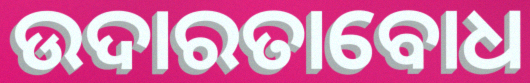
ଉଦାରତାବୋଧ